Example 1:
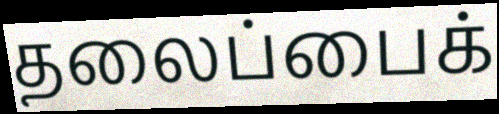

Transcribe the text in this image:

தலைப்பைக்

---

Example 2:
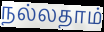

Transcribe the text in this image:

நல்லதாம்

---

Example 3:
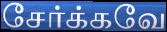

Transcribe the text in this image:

சேர்க்கவே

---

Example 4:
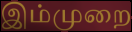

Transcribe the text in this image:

இம்முறை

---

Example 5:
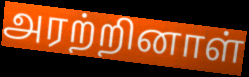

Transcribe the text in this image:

அரற்றினாள்